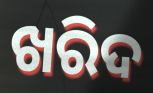
ଖରିଦ